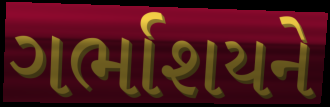
ગર્ભાશયને